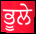
ਭੂਲੇ